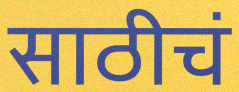
साठीचं